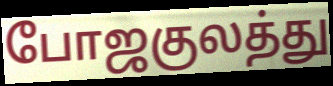
போஜகுலத்து